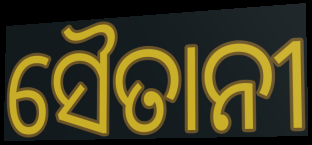
ସୈତାନୀ